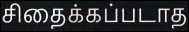
சிதைக்கப்படாத